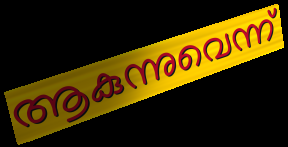
ആകുന്നുവെന്ന്